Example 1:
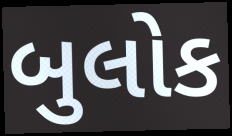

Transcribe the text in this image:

બુલોક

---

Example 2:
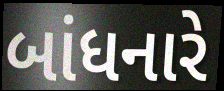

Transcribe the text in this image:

બાંધનારે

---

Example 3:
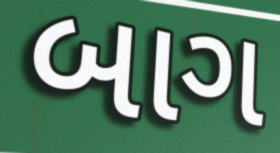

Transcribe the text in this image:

બાગ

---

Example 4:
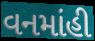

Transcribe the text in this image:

વનમાંહી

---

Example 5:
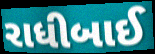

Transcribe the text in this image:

રાધીબાઈ